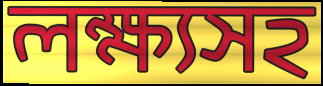
লক্ষ্যসহ